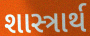
શાસ્ત્રાર્થ